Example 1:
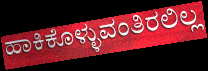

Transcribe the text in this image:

ಹಾಕಿಕೊಳ್ಳುವಂತಿರಲಿಲ್ಲ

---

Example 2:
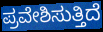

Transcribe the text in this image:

ಪ್ರವೇಶಿಸುತ್ತಿದೆ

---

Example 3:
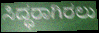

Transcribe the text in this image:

ಸಿದ್ಧರಾಗಿರಲು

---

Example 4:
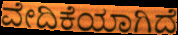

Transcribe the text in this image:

ವೇದಿಕೆಯಾಗಿದೆ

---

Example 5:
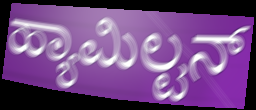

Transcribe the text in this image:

ಹ್ಯಾಮಿಲ್ಟನ್